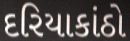
દરિયાકાંઠો